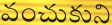
వంచుకుని